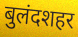
बुलंदशहर